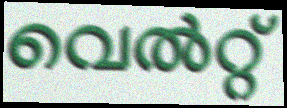
വെൽറ്റ്